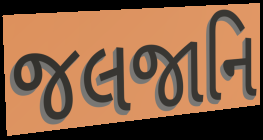
જલજાનિ